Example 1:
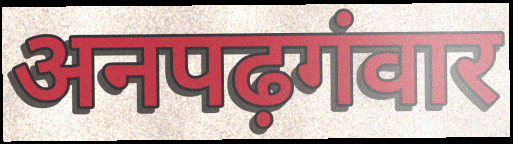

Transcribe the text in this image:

अनपढ़गंवार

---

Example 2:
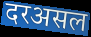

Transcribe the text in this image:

दरअसल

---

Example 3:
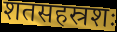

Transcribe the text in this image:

शतसहस्रशः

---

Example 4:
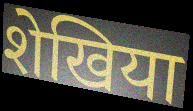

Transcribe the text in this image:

शेखिया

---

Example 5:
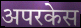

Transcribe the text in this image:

अपरकेस